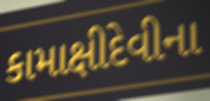
કામાક્ષીદેવીના